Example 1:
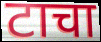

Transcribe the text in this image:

टाचा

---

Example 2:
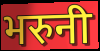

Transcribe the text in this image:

भरुनी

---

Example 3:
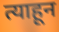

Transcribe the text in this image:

त्याहून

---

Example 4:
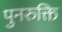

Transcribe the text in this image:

पुनरुक्ति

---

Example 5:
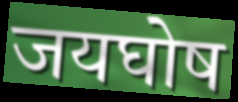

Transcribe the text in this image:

जयघोष